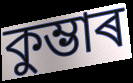
কুম্ভাৰ